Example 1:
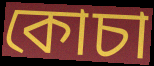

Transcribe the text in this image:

কোচা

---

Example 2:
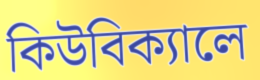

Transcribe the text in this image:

কিউবিক্যালে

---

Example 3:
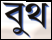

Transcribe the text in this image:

বুথ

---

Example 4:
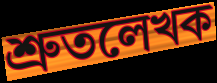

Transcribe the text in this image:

শ্রুতলেখক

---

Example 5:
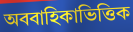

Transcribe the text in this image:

অববাহিকাভিত্তিক